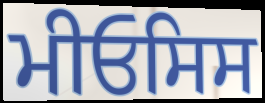
ਮੀਓਸਿਸ